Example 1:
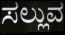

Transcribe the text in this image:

ಸಲ್ಲುವ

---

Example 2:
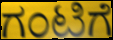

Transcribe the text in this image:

ಗಂಟಿಗೆ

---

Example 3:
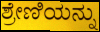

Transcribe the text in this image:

ಶ್ರೇಣಿಯನ್ನು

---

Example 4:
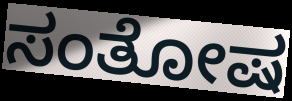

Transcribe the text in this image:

ಸಂತೋಷ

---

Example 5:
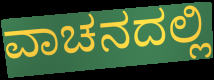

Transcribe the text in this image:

ವಾಚನದಲ್ಲಿ